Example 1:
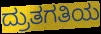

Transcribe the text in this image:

ದ್ರುತಗತಿಯ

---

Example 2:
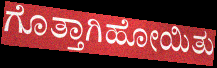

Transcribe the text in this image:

ಗೊತ್ತಾಗಿಹೋಯಿತು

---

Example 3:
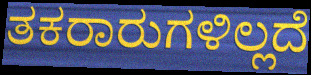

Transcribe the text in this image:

ತಕರಾರುಗಳಿಲ್ಲದೆ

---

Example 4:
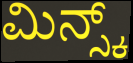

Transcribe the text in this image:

ಮಿನ್ಸ್ಕ್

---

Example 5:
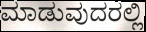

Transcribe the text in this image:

ಮಾಡುವುದರಲ್ಲಿ